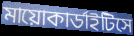
মায়োকার্ডাইটিসে